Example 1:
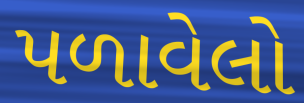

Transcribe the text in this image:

પળાવેલો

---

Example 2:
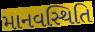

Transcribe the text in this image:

માનવસ્થિતિ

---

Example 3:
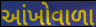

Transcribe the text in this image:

આંખોવાળા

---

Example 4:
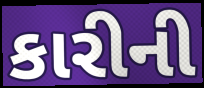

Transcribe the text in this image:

કારીની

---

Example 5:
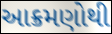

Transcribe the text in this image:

આક્રમણોથી